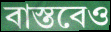
বাস্তবেও